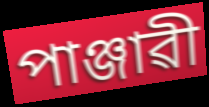
পাঞ্জাৱী